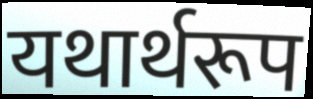
यथार्थरूप